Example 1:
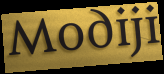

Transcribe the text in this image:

Modiji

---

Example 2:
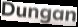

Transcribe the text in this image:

Dungan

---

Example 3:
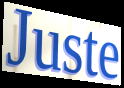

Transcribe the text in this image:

Juste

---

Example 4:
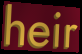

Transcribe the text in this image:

heir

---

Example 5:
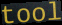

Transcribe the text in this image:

tool